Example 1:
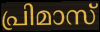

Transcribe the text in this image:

പ്രിമാസ്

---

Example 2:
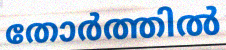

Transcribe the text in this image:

തോർത്തിൽ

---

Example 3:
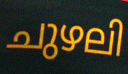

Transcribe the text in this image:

ചുഴലി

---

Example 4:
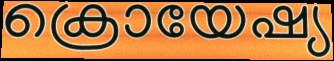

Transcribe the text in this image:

ക്രൊയേഷ്യ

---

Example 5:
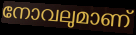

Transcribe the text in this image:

നോവലുമാണ്